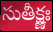
సుతీక్ష్ణః